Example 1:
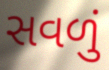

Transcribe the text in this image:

સવળું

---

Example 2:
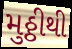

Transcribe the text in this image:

મુઠ્ઠીથી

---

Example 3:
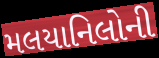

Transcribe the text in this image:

મલયાનિલોની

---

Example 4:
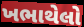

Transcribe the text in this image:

ખભાથેલો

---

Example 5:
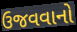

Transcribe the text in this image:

ઉજવવાનો